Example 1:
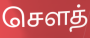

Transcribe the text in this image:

சௌத்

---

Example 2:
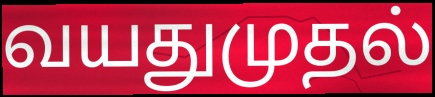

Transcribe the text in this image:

வயதுமுதல்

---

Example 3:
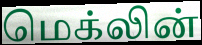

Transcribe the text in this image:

மெக்லின்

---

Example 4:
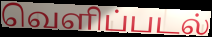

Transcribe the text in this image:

வெளிப்படல்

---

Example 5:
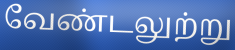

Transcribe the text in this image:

வேண்டலுற்று